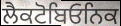
ਲੈਕਟੋਬਿਓਨਿਕ